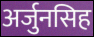
अर्जुनसिह